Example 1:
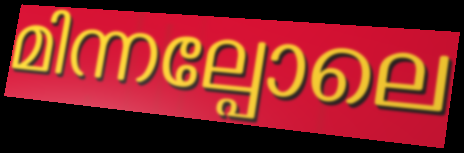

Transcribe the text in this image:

മിന്നല്പോലെ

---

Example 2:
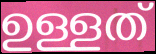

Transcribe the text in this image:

ഉള്ളത്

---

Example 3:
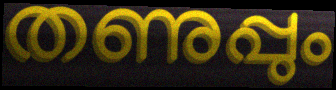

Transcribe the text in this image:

തണുപ്പും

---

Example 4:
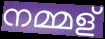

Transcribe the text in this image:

നമ്മള്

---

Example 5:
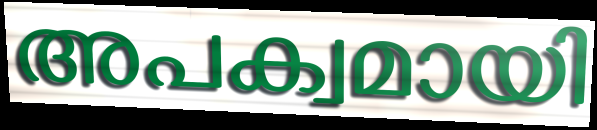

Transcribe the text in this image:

അപക്വമായി